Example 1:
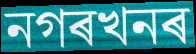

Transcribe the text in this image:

নগৰখনৰ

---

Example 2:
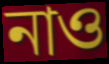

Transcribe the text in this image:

নাও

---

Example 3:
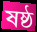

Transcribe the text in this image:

ষষ্ঠ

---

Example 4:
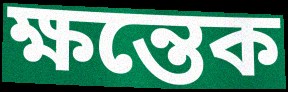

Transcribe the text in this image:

ক্ষন্তেক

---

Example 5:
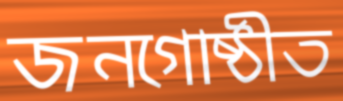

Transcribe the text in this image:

জনগোষ্ঠীত